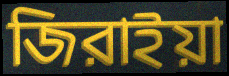
জিরাইয়া